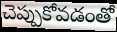
చెప్పుకోవడంతో